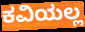
ಕವಿಯಲ್ಲ